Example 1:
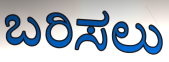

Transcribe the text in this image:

ಬರಿಸಲು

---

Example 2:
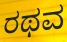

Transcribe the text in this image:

ರಥವ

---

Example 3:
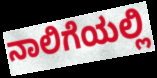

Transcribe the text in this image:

ನಾಲಿಗೆಯಲ್ಲಿ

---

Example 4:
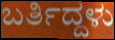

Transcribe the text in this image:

ಬರ್ತಿದ್ದಳು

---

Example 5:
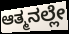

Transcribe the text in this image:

ಆತ್ಮನಲ್ಲೇ